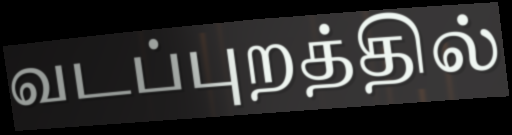
வடப்புறத்தில்